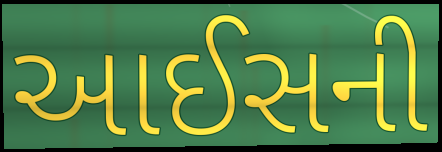
આઈસની